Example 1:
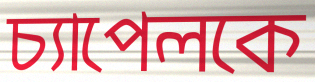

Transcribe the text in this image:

চ্যাপেলকে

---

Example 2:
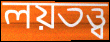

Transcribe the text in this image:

লয়তত্ত্ব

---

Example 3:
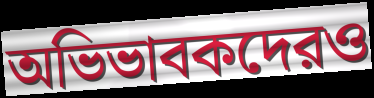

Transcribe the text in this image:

অভিভাবকদেরও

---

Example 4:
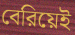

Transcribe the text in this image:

বেরিয়েই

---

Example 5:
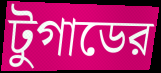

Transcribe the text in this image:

টুগাডের